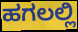
ಹಗಲಲ್ಲಿ